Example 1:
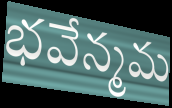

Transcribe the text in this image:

భవేన్మమ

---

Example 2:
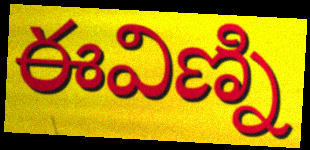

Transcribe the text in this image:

ఈవిణ్ని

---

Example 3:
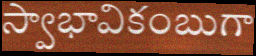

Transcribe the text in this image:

స్వాభావికంబుగా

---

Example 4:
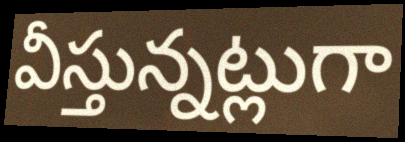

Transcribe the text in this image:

వీస్తున్నట్లుగా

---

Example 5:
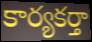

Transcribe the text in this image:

కార్యకర్తా